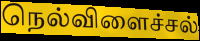
நெல்விளைச்சல்